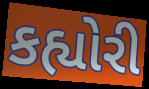
કહ્યોરી